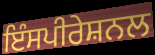
ਇੰਸਪੀਰੇਸ਼ਨਲ